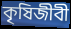
কৃষিজীবী